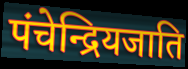
पंचेन्द्रियजाति